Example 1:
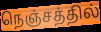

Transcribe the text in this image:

நெஞ்சத்தில்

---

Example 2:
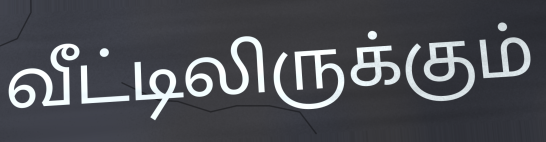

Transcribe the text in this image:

வீட்டிலிருக்கும்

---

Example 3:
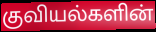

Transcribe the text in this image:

குவியல்களின்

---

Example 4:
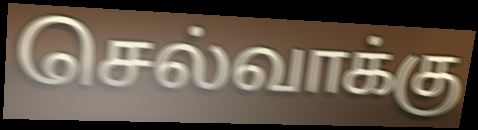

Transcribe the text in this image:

செல்வாக்கு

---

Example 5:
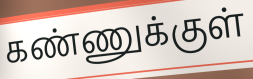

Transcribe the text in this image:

கண்ணுக்குள்